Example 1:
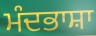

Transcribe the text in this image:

ਮੰਦਭਾਸ਼ਾ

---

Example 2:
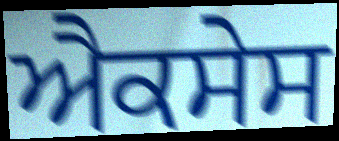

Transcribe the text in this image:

ਐਕਸੇਸ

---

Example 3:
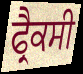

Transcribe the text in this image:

ਫ੍ਰੈਕਸੀ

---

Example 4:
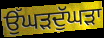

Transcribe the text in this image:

ਉੱਘੜਦੁੱਘੜਾ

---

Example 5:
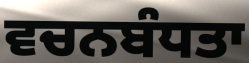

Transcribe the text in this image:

ਵਚਨਬੰਧਤਾ